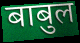
बाबुल